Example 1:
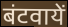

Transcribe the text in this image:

बंटवायें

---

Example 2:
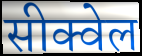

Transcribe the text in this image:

सीक्वेल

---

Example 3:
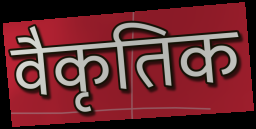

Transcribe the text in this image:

वैकृतिक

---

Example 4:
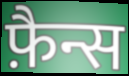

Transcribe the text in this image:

फ़ैन्स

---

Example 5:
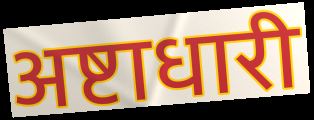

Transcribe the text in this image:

अष्टाधारी